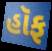
હૉફ